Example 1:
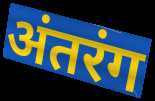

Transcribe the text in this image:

अंतरंग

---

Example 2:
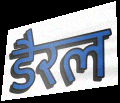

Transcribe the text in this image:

डैरल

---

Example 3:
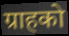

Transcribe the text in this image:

ग्राहको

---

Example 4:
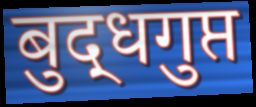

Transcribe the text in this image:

बुद्धगुप्त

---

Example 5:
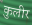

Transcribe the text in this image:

कुलीर